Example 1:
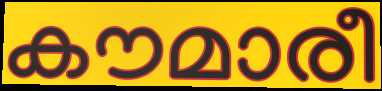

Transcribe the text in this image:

കൗമാരീ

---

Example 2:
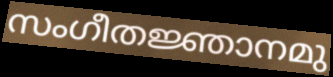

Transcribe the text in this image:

സംഗീതജ്ഞാനമു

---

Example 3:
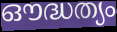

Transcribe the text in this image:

ഔദ്ധത്യം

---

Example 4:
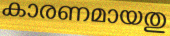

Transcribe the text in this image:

കാരണമായതു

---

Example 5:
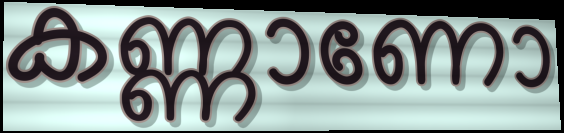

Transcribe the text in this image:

കണ്ണാണോ